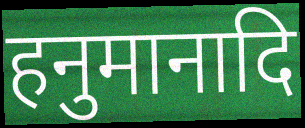
हनुमानादि